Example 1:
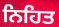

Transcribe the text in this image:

ਨਿਹਿਤ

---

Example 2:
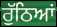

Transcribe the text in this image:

ਰੁੱਠਿਆਂ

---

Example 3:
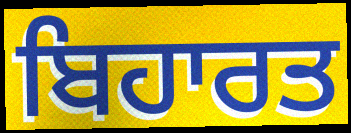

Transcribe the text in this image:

ਬਿਹਾਰਤ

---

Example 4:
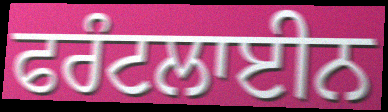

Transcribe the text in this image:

ਫਰੰਟਲਾਈਨ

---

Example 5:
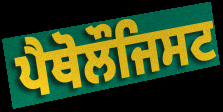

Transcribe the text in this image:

ਪੈਥੋਲੌਜਿਸਟ